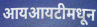
आयआयटीमधून